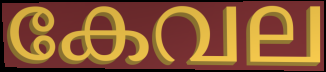
കേവല